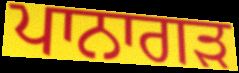
ਪਾਨਾਗੜ